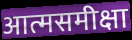
आत्मसमीक्षा